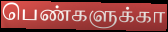
பெண்களுக்கா